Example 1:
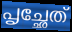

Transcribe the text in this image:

പൃച്ഛേത്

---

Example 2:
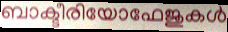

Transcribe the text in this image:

ബാക്ടീരിയോഫേജുകൾ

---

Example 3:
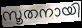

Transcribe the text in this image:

സൂതനായി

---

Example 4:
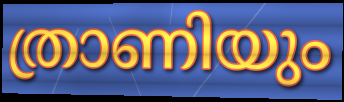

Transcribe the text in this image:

ത്രാണിയും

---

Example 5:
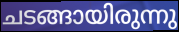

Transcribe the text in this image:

ചടങ്ങായിരുന്നു